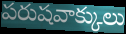
పరుషవాక్కులు